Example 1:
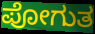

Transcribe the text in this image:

ಪೋಗುತ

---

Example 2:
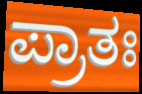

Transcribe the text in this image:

ಪ್ರಾತಃ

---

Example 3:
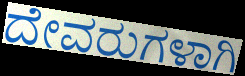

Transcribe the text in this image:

ದೇವರುಗಳಾಗಿ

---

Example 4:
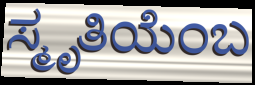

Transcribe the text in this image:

ಸ್ಮೃತಿಯೆಂಬ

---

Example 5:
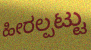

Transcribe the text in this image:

ಹೀರಲ್ಪಟ್ಟು